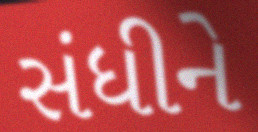
સંધીને